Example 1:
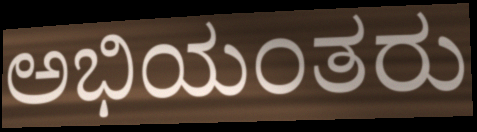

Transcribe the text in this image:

ಅಭಿಯಂತರು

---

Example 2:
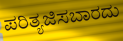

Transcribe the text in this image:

ಪರಿತ್ಯಜಿಸಬಾರದು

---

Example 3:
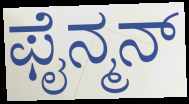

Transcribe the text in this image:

ಫೈನ್ಮನ್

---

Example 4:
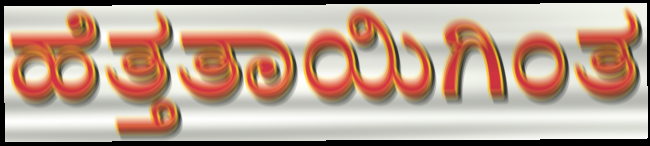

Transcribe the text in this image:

ಹೆತ್ತತಾಯಿಗಿಂತ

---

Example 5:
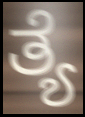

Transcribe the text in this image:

ತ್ಯೆ